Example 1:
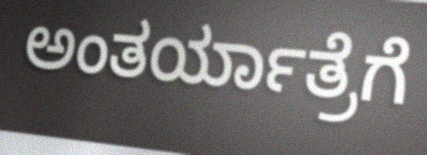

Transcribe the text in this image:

ಅಂತರ್ಯಾತ್ರೆಗೆ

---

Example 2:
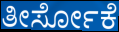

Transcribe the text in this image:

ತೀರ್ಸೋಕೆ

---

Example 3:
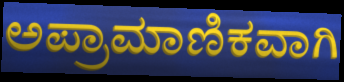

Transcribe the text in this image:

ಅಪ್ರಾಮಾಣಿಕವಾಗಿ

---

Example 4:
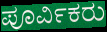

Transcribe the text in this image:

ಪೂರ್ವಿಕರು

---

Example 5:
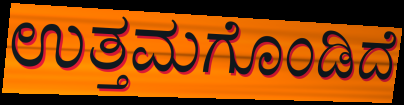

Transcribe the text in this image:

ಉತ್ತಮಗೊಂಡಿದೆ